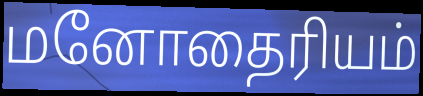
மனோதைரியம்